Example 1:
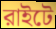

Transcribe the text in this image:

রাইটে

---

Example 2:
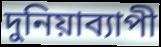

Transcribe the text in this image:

দুনিয়াব্যাপী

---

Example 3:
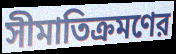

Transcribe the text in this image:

সীমাতিক্রমণের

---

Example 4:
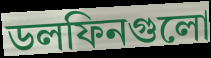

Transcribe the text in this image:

ডলফিনগুলো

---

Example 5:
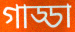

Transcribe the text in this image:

গাড্ডা